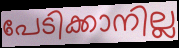
പേടിക്കാനില്ല